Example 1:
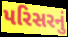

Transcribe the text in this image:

પરિસરનું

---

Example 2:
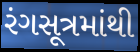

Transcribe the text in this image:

રંગસૂત્રમાંથી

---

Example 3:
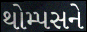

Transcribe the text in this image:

થોમ્પસને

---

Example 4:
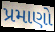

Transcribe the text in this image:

પ્રમાણો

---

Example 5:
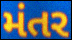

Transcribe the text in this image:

મંતર